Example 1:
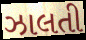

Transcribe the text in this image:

ઝાલતી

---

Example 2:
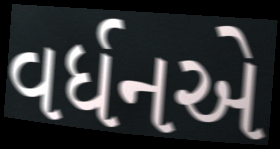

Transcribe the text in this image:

વર્ધનએ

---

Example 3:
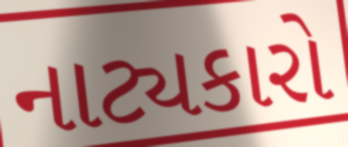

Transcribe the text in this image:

નાટ્યકારો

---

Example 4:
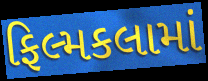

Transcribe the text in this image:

ફિલ્મકલામાં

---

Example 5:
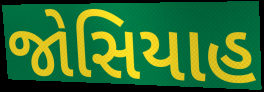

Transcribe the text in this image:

જોસિયાહ